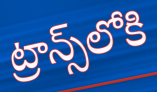
ట్రాన్స్‌లోకి